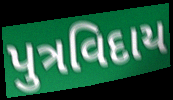
પુત્રવિદાય